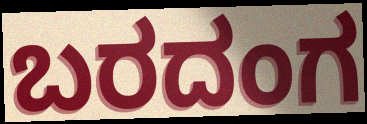
ಬರದಂಗ